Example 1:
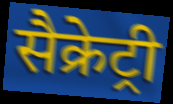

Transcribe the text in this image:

सैक्रेट्री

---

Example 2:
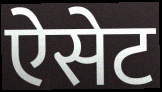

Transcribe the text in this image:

ऐसेट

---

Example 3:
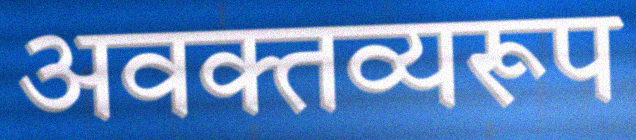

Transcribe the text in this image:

अवक्तव्यरूप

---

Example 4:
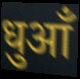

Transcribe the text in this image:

धुआँ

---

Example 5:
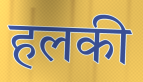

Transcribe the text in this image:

हलकी